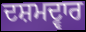
ਦਸ਼ਮਦ੍ਵਾਰ